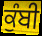
ਕੁੰਬੀ